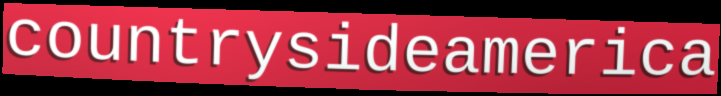
countrysideamerica